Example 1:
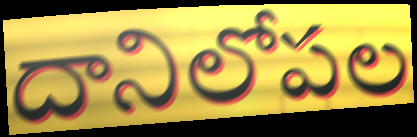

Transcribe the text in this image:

దానిలోపల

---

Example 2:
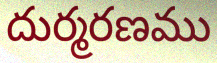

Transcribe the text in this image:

దుర్మరణము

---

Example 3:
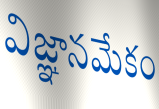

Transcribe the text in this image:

విజ్ఞానమేకం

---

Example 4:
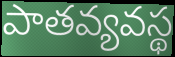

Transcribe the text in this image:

పాతవ్యవస్థ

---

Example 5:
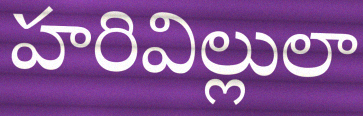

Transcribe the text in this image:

హరివిల్లులా